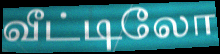
வீட்டிலோ